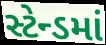
સ્ટેન્ડમાં